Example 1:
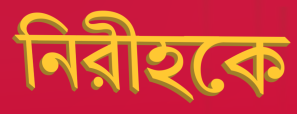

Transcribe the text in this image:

নিরীহকে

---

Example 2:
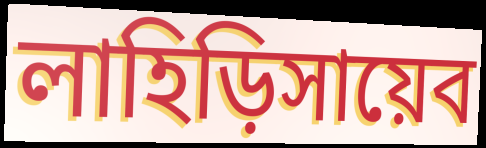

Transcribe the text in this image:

লাহিড়িসায়েব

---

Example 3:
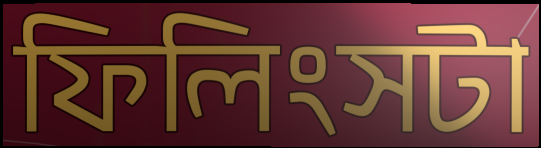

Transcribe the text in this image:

ফিলিংসটা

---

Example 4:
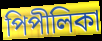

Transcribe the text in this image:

পিপীলিকা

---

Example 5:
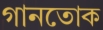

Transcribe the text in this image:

গানতোক